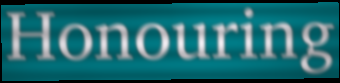
Honouring